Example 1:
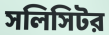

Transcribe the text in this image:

সলিসিটর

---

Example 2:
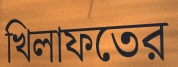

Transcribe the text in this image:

খিলাফতের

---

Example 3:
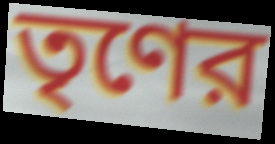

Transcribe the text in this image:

তৃণের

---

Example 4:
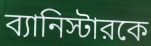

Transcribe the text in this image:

ব্যানিস্টারকে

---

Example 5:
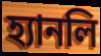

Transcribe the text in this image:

হ্যানলি